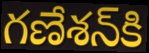
గణేశన్‍కి